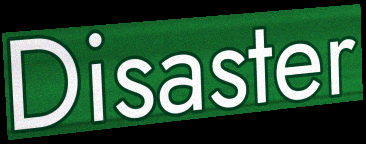
Disaster